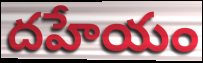
దహేయం